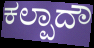
ಕಲ್ಪಾದೌ